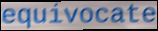
equivocate